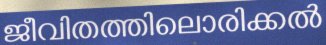
ജീവിതത്തിലൊരിക്കൽ